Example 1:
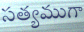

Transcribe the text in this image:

సత్యముగా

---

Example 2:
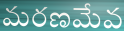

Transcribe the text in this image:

మరణమేవ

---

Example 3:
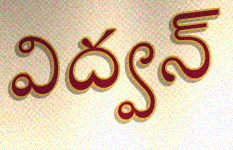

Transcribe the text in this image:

విద్వన్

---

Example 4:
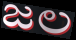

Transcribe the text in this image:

జల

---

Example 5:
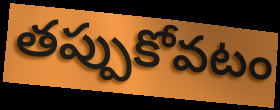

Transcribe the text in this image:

తప్పుకోవటం